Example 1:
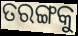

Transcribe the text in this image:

ତରଙ୍ଗକୁ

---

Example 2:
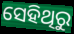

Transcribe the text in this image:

ସେହିଥିରୁ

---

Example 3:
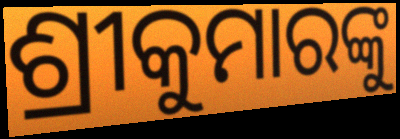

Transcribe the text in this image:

ଶ୍ରୀକୁମାରଙ୍କୁ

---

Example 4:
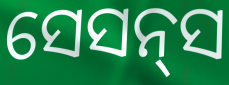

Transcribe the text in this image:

ସେସନ୍‌ସ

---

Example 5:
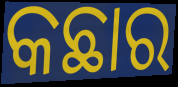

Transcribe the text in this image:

କଛାର